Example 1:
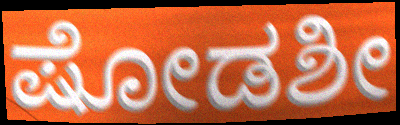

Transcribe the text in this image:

ಷೋಡಶೀ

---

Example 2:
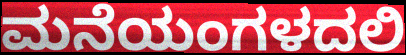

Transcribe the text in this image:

ಮನೆಯಂಗಳದಲಿ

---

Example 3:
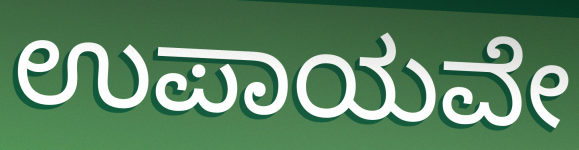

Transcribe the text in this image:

ಉಪಾಯವೇ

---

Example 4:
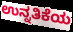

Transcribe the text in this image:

ಉನ್ನತಿಕೆಯ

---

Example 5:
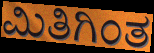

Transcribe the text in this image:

ಮಿತಿಗಿಂತ